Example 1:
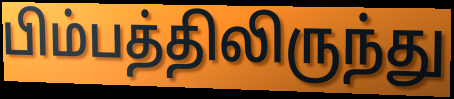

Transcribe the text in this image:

பிம்பத்திலிருந்து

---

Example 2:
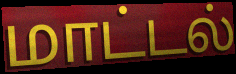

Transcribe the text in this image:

மாட்டல்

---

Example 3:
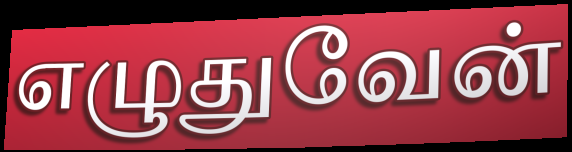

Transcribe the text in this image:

எழுதுவேன்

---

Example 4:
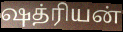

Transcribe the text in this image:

ஷத்ரியன்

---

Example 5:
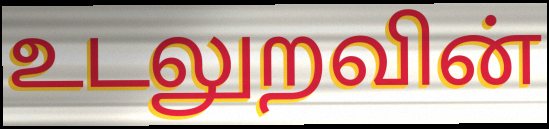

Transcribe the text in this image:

உடலுறவின்